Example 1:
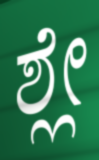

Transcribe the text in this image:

ಶ್ಲೇ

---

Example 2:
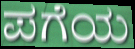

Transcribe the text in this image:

ಪಗೆಯ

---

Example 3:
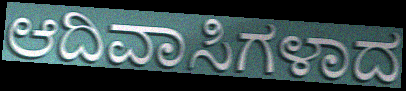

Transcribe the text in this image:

ಆದಿವಾಸಿಗಳಾದ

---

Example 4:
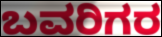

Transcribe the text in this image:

ಬವರಿಗರ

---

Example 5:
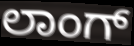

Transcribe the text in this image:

ಲಾಂಗ್